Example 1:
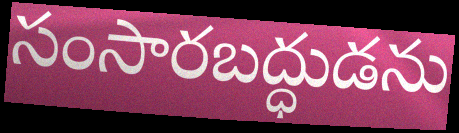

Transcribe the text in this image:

సంసారబద్ధుడను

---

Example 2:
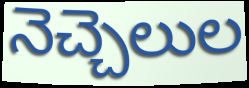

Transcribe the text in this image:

నెచ్చెలుల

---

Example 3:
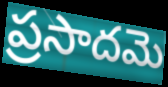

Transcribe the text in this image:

ప్రసాదమె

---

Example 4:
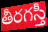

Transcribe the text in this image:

తీరగస్తీ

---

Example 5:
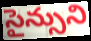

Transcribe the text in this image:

సైన్సుని